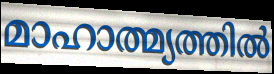
മാഹാത്മ്യത്തിൽ